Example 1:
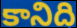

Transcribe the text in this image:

కానిది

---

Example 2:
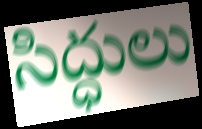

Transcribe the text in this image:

సిద్ధులు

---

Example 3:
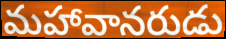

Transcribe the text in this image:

మహావానరుడు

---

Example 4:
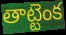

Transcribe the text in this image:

తాట్టెంక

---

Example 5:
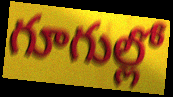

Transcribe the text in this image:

గూగుల్లో